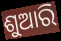
ଶୁଆରି